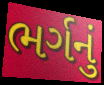
ભર્ગનું